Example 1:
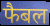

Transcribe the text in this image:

फैबल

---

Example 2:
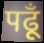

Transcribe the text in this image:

पढूँ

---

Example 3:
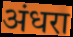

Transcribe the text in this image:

अंधरा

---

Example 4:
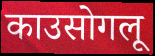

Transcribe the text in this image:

काउसोगलू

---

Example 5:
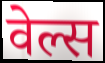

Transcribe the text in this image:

वेल्स